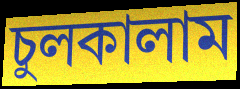
চুলকালাম